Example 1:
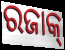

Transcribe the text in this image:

ରଜାକ୍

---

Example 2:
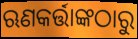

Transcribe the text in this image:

ଋଣକର୍ତ୍ତାଙ୍କଠାରୁ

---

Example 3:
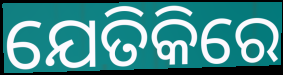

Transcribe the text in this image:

ଯେତିକିରେ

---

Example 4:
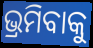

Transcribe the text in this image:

ଭ୍ରମିବାକୁ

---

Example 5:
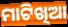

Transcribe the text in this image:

ମାଟିଖିଆ